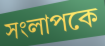
সংলাপকে